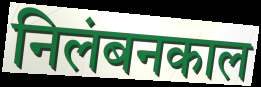
निलंबनकाल